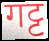
गट्ट